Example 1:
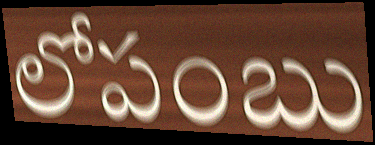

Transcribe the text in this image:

లోపంబు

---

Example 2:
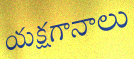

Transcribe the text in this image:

యక్షగానాలు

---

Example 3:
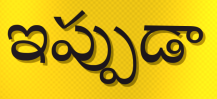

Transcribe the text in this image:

ఇప్పుడా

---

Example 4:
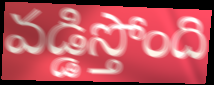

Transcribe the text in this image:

వడ్డిస్తోంది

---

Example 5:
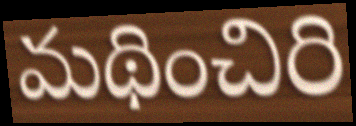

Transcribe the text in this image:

మథించిరి